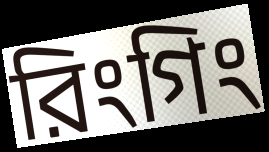
রিংগিং